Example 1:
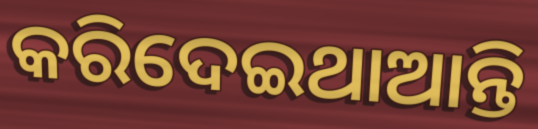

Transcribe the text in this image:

କରିଦେଇଥାଆନ୍ତି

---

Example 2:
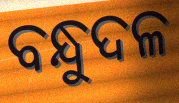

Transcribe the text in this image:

ବନ୍ଧୁଦଳ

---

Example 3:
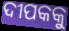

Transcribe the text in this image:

ଦୀପକକୁ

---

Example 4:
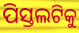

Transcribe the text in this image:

ପିସ୍ତଲଟିକୁ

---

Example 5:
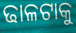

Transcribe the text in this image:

ଢାଳଟାକୁ